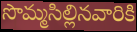
సొమ్మసిల్లినవారికి